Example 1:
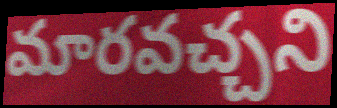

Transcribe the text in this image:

మారవచ్చని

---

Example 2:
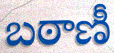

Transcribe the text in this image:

బఠాణీ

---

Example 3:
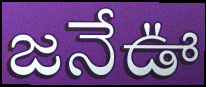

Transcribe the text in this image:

జనేఊ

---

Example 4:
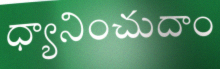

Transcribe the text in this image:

ధ్యానించుదాం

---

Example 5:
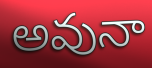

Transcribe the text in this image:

అవునా